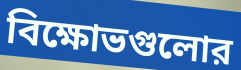
বিক্ষোভগুলোর